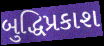
બુદ્ધિપ્રકાશ